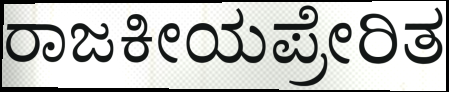
ರಾಜಕೀಯಪ್ರೇರಿತ